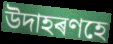
উদাহৰণহে